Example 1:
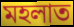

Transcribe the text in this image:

মহলাত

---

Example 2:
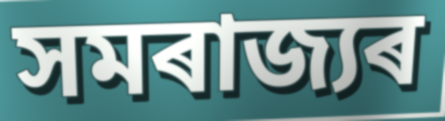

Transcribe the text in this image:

সমৰাজ্যৰ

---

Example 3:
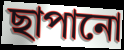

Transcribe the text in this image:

ছাপানো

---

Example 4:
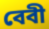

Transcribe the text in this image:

বেবী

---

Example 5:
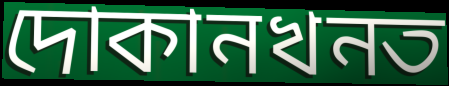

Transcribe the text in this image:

দোকানখনত